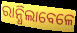
ରାନ୍ଧିଲାବେଳେ